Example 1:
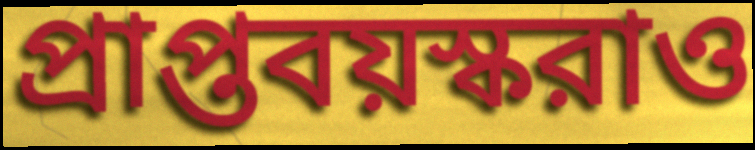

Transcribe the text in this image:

প্রাপ্তবয়স্করাও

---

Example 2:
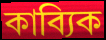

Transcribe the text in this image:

কাব্যিক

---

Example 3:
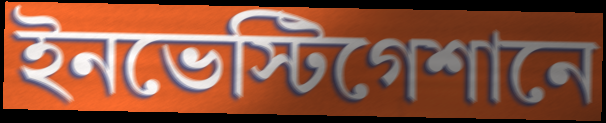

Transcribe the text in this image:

ইনভেস্টিগেশানে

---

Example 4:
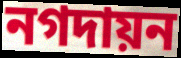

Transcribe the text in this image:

নগদায়ন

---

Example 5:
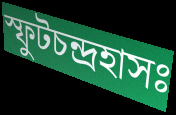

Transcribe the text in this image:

স্ফুটচন্দ্রহাসঃ